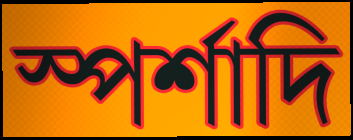
স্পর্শাদি